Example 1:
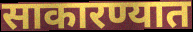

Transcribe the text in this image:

साकारण्यात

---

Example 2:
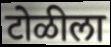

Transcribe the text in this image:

टोळीला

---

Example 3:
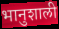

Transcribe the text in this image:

भानुशाली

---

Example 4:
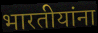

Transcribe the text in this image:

भारतीयांना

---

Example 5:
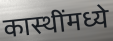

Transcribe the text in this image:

कास्थींमध्ये